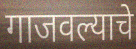
गाजवल्याचे